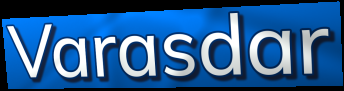
Varasdar